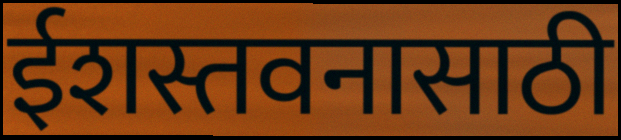
ईशस्तवनासाठी